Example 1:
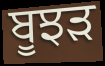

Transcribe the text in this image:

ਬੂਝੜ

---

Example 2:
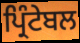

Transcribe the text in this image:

ਪ੍ਰਿੰਟੇਬਲ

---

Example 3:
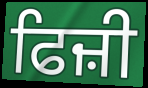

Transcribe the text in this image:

ਫਿਜ਼ੀ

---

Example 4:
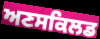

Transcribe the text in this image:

ਅਣਸਕਿਲਡ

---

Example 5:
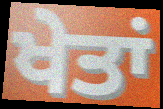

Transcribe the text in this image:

ਖੇਤਾਂ